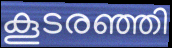
കൂടരഞ്ഞി